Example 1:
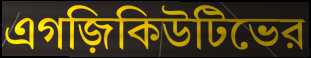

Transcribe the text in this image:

এগজ়িকিউটিভের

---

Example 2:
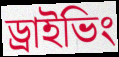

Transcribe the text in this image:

ড্রাইভিং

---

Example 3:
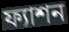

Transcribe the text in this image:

ফ্যাশন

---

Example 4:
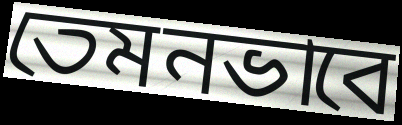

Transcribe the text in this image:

তেমনভাবে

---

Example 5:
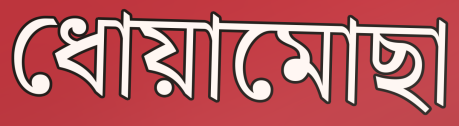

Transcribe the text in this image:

ধোয়ামোছা